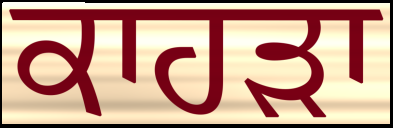
ਕਾਹੜਾ